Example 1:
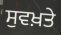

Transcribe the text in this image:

ਸੁਵਖ਼ਤੇ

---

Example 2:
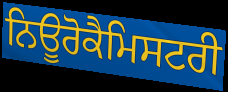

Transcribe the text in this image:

ਨਿਊਰੋਕੈਮਿਸਟਰੀ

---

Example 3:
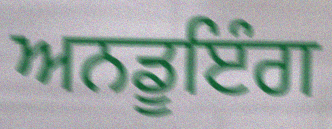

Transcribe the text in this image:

ਅਨਡੂਇੰਗ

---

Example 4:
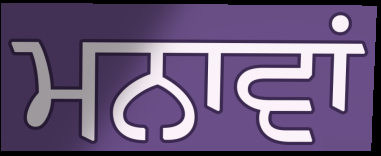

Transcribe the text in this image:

ਮਨਾਵਾਂ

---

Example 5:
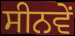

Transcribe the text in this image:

ਸੀਨਵੇਂ